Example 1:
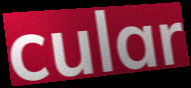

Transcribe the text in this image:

cular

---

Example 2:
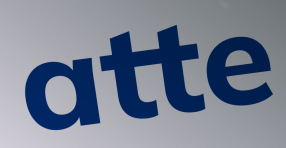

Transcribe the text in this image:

atte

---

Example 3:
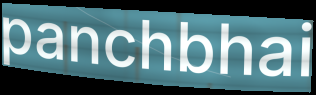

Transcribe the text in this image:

panchbhai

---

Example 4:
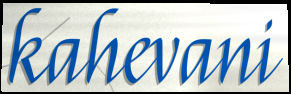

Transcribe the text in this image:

kahevani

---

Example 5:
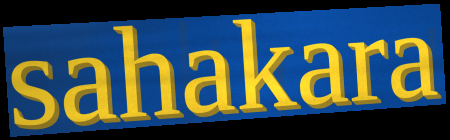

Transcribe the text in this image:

sahakara